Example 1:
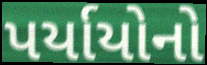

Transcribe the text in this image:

પર્યાયોનો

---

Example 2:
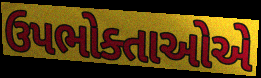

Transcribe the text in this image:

ઉપભોક્તાઓએ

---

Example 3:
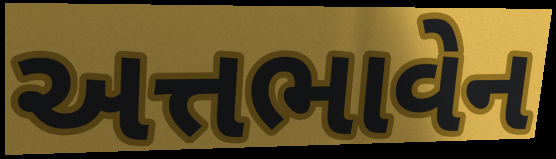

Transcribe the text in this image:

અત્તભાવેન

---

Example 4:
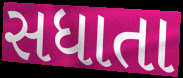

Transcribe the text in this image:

સધાતા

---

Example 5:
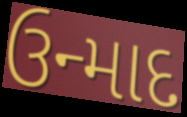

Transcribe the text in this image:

ઉન્માદ